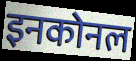
इनकोनल